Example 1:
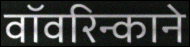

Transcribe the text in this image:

वॉवरिन्काने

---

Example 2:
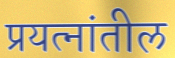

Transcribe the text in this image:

प्रयत्नांतील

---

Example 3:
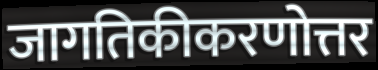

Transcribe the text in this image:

जागतिकीकरणोत्तर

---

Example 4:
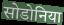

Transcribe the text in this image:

सोडोनिया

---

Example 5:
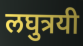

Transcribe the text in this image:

लघुत्रयी